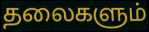
தலைகளும்